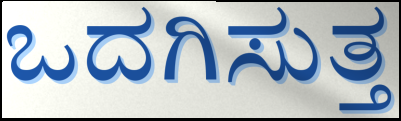
ಒದಗಿಸುತ್ತ